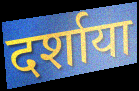
दर्शाया